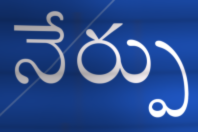
నేర్పు